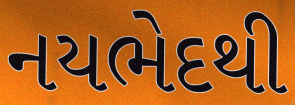
નયભેદથી